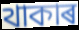
থাকাৰ